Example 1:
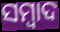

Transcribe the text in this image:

ସମ୍ବାଦ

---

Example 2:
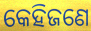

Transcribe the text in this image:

କେହିଜଣେ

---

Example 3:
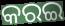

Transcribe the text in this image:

କରଇ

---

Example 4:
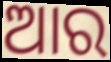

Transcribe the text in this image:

ଆର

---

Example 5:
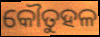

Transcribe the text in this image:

କୌତୁହଳ